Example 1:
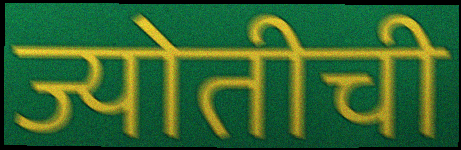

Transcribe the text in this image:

ज्योतीची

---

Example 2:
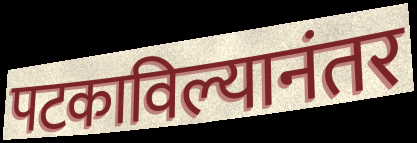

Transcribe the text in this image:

पटकाविल्यानंतर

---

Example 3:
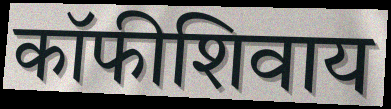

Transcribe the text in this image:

कॉफीशिवाय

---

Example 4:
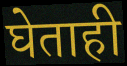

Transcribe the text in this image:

घेताही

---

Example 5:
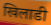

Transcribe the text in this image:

खिलाडी